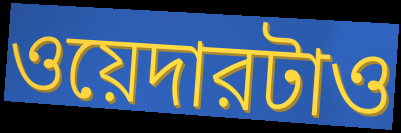
ওয়েদারটাও